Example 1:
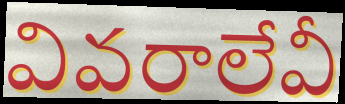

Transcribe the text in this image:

వివరాలేవీ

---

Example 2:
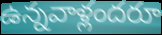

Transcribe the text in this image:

ఉన్నవాళ్లందరూ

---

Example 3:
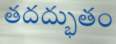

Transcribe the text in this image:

తదద్భుతం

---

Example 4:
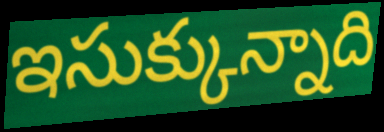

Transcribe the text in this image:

ఇసుక్కున్నాది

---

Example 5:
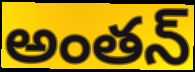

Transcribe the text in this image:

అంతన్